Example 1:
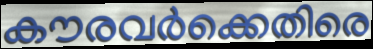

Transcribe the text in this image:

കൗരവർക്കെതിരെ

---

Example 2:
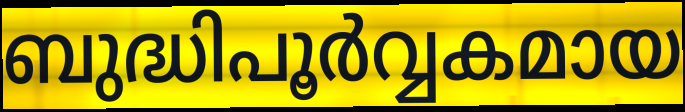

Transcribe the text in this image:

ബുദ്ധിപൂർവ്വകമായ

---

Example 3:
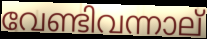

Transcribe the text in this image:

വേണ്ടിവന്നാല്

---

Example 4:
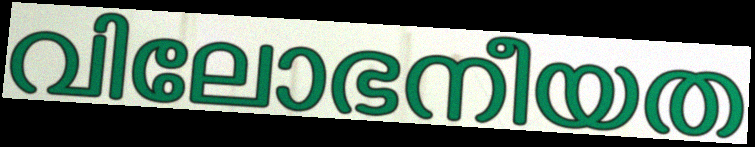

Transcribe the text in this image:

വിലോഭനീയത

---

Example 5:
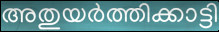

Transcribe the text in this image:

അതുയർത്തിക്കാട്ടി